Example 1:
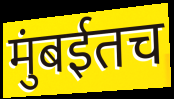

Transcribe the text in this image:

मुंबईतच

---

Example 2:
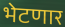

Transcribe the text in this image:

भेटणार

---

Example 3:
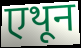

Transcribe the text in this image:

एथून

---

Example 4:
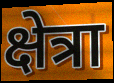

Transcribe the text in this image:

क्षेत्रा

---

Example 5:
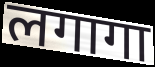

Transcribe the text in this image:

लगागा